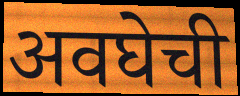
अवघेची